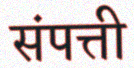
संपत्ती